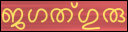
ജഗത്ഗുരു